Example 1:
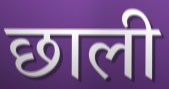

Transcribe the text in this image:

छाली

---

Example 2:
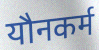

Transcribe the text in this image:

यौनकर्म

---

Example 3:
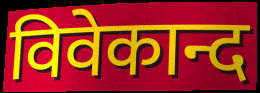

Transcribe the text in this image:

विवेकान्द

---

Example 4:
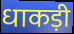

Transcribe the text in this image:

धाकड़ी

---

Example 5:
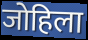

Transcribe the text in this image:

जोहिला